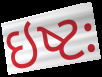
ઇષ્ટઃ